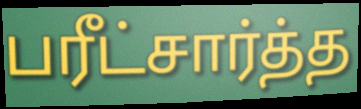
பரீட்சார்த்த